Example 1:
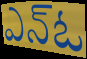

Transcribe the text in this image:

ఎన్ఓ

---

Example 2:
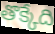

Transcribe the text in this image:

తొక్కేది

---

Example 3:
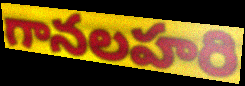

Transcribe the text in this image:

గానలహరి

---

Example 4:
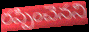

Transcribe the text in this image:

రప్పించెనని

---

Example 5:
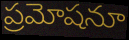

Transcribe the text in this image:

ప్రమోషనూ